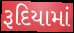
રૂદિયામાં